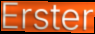
Erster